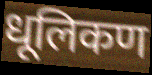
धूलिकण